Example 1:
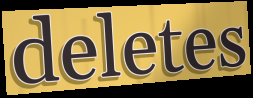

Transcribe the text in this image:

deletes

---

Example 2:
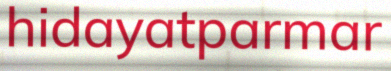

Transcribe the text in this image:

hidayatparmar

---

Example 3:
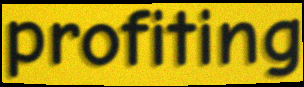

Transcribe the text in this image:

profiting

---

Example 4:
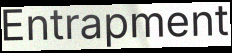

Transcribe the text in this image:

Entrapment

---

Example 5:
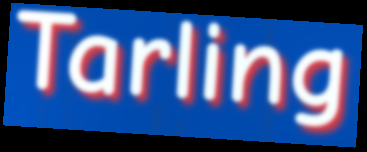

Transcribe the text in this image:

Tarling